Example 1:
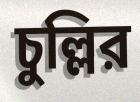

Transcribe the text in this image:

চুল্লির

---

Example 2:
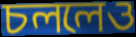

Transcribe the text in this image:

চললেও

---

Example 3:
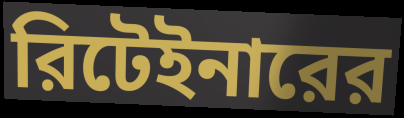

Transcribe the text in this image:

রিটেইনারের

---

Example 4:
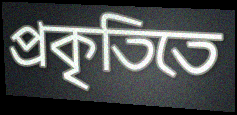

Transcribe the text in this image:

প্রকৃতিতে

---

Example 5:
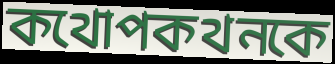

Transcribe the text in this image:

কথোপকথনকে